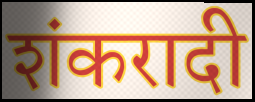
शंकरादी